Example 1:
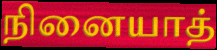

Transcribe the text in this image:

நினையாத்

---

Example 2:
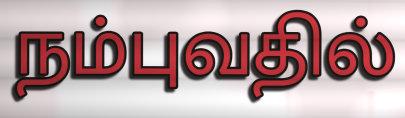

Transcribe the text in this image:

நம்புவதில்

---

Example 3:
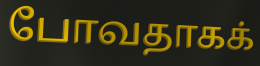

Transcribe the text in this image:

போவதாகக்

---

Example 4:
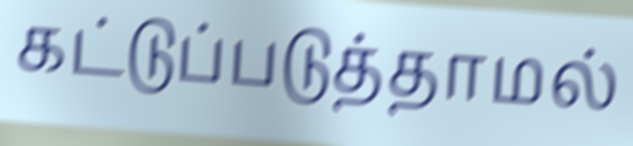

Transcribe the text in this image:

கட்டுப்படுத்தாமல்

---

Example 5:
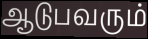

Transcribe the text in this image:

ஆடுபவரும்